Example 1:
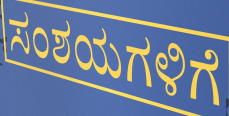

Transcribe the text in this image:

ಸಂಶಯಗಳಿಗೆ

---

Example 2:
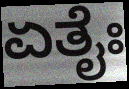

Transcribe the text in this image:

ಏತೈಃ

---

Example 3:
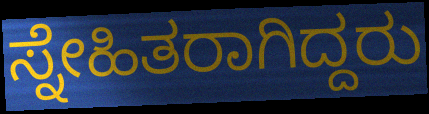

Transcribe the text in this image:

ಸ್ನೇಹಿತರಾಗಿದ್ದರು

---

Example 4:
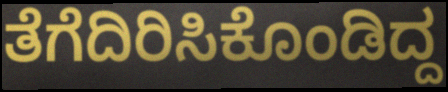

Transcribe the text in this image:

ತೆಗೆದಿರಿಸಿಕೊಂಡಿದ್ದ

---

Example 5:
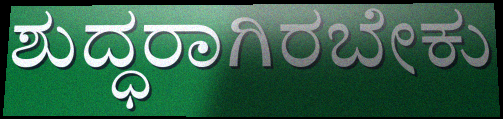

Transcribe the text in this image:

ಶುದ್ಧರಾಗಿರಬೇಕು